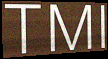
TMI